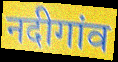
नदीगांव